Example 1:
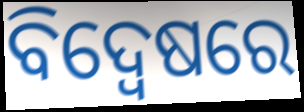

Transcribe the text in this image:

ବିଦ୍ଵେଷରେ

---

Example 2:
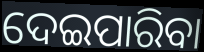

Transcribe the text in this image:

ଦେଇପାରିବା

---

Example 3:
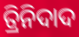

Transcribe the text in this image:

ତ୍ରିନିଦାଦ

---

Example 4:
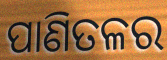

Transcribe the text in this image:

ପାଣିତଳର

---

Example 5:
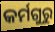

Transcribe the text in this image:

କର୍ମଗୁରୁ